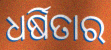
ଧର୍ଷିତାର